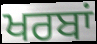
ਖਰਬਾਂ